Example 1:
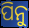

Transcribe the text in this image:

ପିନୁ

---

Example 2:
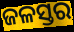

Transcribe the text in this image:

ଜଳସ୍ତର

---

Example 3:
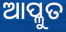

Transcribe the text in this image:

ଆପ୍ଳୁତ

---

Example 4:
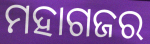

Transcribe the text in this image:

ମହାଗଜର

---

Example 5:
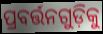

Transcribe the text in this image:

ପ୍ରବର୍ତ୍ତନଗୁଡ଼ିକୁ